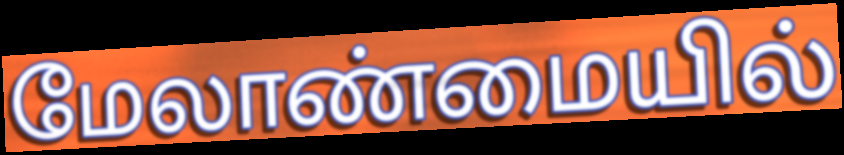
மேலாண்மையில்